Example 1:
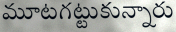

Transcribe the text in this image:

మూటగట్టుకున్నారు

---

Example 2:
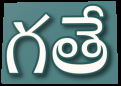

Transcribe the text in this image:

గతే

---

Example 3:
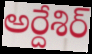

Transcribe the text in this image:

అర్దేశిర్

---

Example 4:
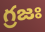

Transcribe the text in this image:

గ్రజః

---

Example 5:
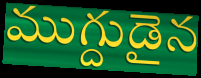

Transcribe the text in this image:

ముగ్దుడైన